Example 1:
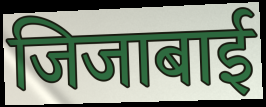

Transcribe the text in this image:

जिजाबाई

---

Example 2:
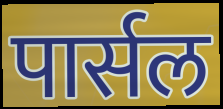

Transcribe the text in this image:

पार्सल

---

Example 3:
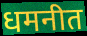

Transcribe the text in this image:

धमनीत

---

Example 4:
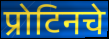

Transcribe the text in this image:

प्रोटिनचे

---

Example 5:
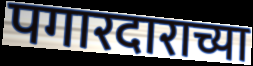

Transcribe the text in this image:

पगारदाराच्या